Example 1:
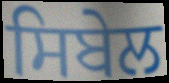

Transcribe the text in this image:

ਸਿਬੇਲ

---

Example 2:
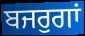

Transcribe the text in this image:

ਬਜਰੁਗਾਂ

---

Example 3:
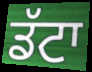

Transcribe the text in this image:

ਡੱਟਾ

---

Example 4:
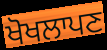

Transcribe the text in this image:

ਖੋਖਲਾਪਣ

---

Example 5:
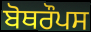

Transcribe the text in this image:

ਬੋਥਰੌਪਸ